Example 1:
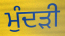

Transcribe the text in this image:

ਮੁੰਦੜੀ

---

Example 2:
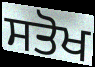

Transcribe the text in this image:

ਸਤੋਖ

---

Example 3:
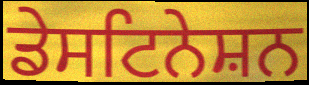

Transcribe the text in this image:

ਡੇਸਟਿਨੇਸ਼ਨ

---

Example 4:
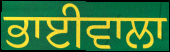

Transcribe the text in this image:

ਭਾਈਵਾਲਾ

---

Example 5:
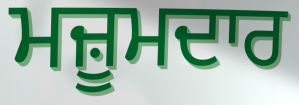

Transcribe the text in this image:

ਮਜ਼ੂਮਦਾਰ